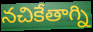
నచికేతాగ్ని